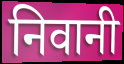
निवानी